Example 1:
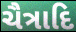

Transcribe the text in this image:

ચૈત્રાદિ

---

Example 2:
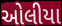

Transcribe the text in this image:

ઓલીયા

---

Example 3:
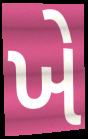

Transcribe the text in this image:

ખે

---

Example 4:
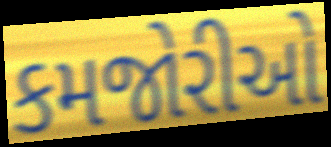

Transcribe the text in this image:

કમજોરીઓ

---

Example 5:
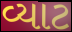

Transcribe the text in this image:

વ્યાટ